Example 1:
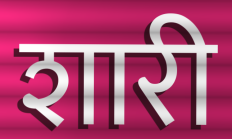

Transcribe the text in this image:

शारी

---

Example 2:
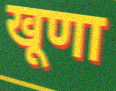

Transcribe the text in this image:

खूणा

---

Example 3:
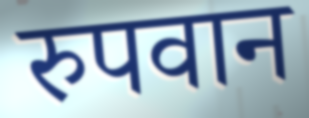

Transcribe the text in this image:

रुपवान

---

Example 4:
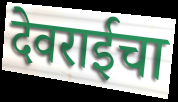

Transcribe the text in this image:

देवराईचा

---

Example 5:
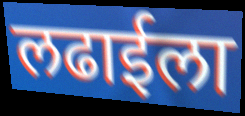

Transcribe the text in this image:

लढाईला